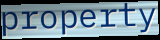
property